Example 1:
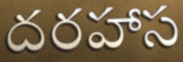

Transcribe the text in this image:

దరహాస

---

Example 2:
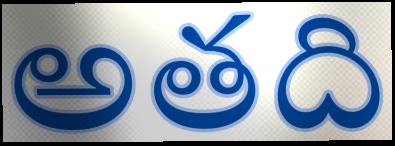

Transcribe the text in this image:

అతది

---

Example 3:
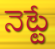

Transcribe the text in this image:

నెట్టే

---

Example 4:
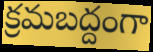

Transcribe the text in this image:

క్రమబద్దంగా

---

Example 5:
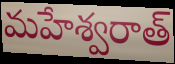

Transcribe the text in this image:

మహేశ్వరాత్